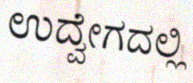
ಉದ್ವೇಗದಲ್ಲಿ